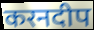
करनदीप